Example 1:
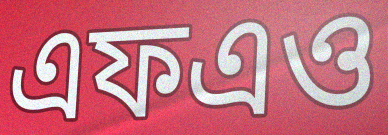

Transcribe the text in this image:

এফএও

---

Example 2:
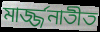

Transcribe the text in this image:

মার্জ্জনাতীত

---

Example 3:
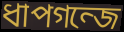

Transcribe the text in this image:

ধাপগন্জে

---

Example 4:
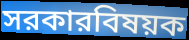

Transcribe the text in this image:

সরকারবিষয়ক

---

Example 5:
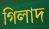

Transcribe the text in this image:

গিলাদ